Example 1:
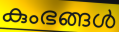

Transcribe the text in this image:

കുംഭങ്ങൾ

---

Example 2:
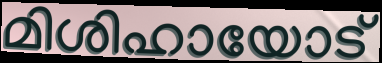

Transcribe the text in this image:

മിശിഹായോട്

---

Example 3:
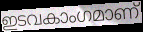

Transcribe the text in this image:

ഇടവകാംഗമാണ്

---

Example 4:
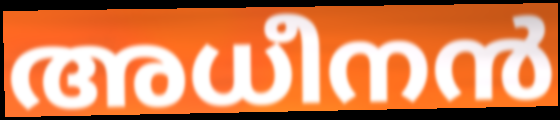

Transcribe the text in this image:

അധീനൻ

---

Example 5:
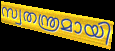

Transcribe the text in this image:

സ്വതന്ത്രമായി